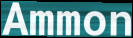
Ammon